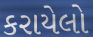
કરાયેલો